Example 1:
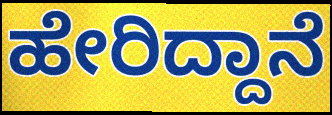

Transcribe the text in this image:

ಹೇರಿದ್ದಾನೆ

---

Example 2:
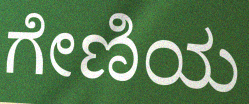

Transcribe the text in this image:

ಗೇಣಿಯ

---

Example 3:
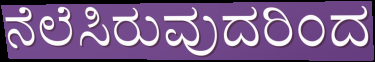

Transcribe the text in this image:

ನೆಲೆಸಿರುವುದರಿಂದ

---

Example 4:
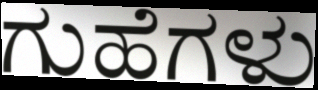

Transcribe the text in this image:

ಗುಹೆಗಳು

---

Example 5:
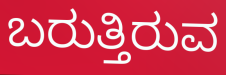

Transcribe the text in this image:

ಬರುತ್ತಿರುವ